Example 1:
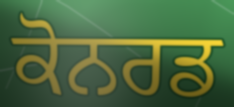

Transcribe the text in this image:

ਕੋਨਰਡ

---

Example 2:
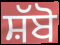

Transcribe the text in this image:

ਸ਼ੱਬੋ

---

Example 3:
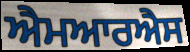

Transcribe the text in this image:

ਐਮਆਰਐਸ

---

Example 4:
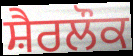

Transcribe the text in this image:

ਸ਼ੈਰਲੌਕ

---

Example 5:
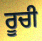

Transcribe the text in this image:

ਰੂਚੀ